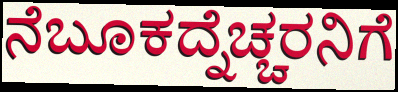
ನೆಬೂಕದ್ನೆಚ್ಚರನಿಗೆ